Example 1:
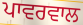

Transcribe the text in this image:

ਪਾਵਰਵਾਲ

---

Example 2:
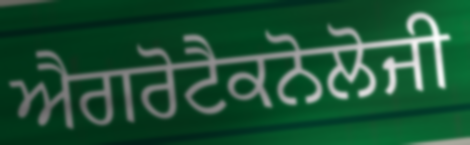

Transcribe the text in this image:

ਐਗਰੋਟੈਕਨੋਲੋਜੀ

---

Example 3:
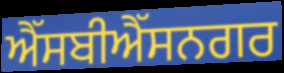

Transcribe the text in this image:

ਐੱਸਬੀਐੱਸਨਗਰ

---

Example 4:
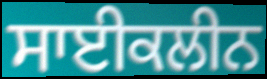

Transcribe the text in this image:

ਸਾਈਕਲੀਨ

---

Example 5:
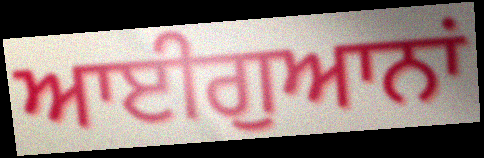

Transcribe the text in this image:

ਆਈਗੁਆਨਾਂ